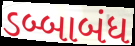
ડબ્બાબંધ